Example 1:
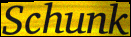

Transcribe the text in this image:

Schunk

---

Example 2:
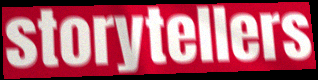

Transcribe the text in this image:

storytellers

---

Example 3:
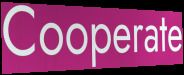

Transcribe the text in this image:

Cooperate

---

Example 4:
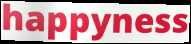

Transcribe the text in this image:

happyness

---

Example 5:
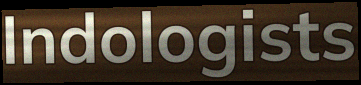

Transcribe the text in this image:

Indologists